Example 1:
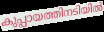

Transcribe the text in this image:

കുപ്പായത്തിനടിയിൽ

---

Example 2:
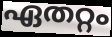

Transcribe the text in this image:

ഏതറ്റം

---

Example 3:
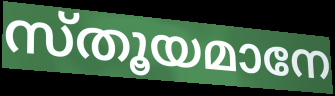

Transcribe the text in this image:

സ്തൂയമാനേ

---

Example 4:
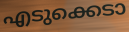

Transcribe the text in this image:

എടുക്കെടാ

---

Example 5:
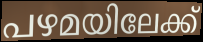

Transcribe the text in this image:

പഴമയിലേക്ക്